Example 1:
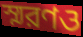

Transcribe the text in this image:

স্মরণও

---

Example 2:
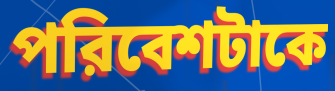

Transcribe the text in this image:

পরিবেশটাকে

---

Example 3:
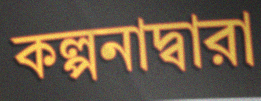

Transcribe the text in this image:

কল্পনাদ্বারা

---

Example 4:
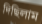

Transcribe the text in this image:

দিছিলাম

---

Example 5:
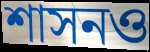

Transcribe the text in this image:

শাসনও